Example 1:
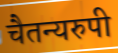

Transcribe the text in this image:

चैतन्यरुपी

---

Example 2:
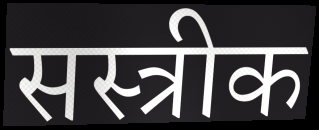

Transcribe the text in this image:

सस्त्रीक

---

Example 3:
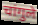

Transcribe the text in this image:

चांगुले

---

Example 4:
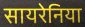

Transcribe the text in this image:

सायरेनिया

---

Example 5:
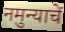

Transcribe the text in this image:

नमुन्याचें